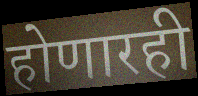
होणारही